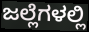
ಜಲ್ಲೆಗಳಲ್ಲಿ